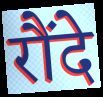
रौंदे